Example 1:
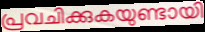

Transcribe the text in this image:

പ്രവചിക്കുകയുണ്ടായി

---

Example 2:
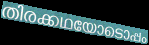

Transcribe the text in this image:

തിരക്കഥയോടൊപ്പം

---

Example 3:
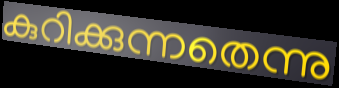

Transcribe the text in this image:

കുറിക്കുന്നതെന്നു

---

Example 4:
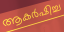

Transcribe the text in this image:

ആകർഷിച്ച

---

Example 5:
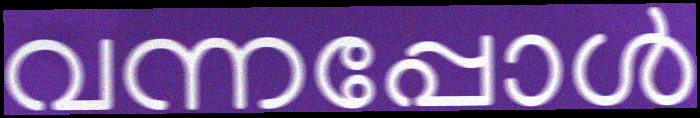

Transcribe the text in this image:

വന്നപ്പോൾ